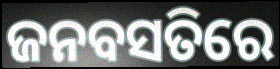
ଜନବସତିରେ